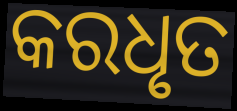
କରଧୃତ